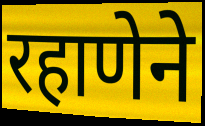
रहाणेने